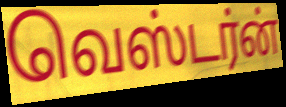
வெஸ்டர்ன்